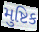
મુષ્ટિક